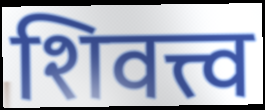
शिवत्त्व